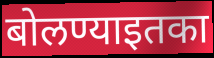
बोलण्याइतका